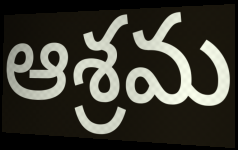
ఆశ్రమ